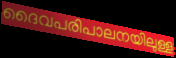
ദൈവപരിപാലനയിലുള്ള